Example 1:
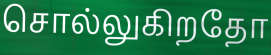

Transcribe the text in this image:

சொல்லுகிறதோ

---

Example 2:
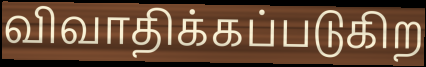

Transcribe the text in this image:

விவாதிக்கப்படுகிற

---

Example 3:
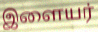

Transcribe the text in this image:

இளையர்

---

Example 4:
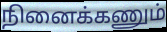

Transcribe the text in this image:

நினைக்கணும்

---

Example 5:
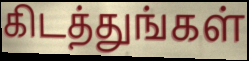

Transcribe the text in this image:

கிடத்துங்கள்